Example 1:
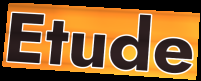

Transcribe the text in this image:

Etude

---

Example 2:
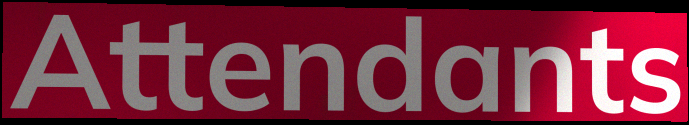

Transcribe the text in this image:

Attendants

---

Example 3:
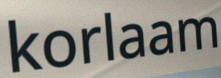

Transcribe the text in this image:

korlaam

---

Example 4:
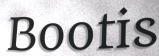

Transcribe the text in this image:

Bootis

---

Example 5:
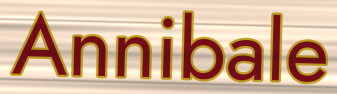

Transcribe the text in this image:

Annibale